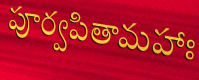
పూర్వపితామహాః